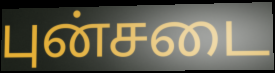
புன்சடை